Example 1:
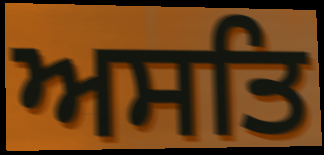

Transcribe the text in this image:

ਅਸਤਿ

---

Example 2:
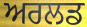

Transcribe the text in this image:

ਅਰਲਡ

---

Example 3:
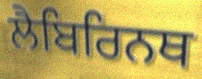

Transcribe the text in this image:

ਲੈਬਿਰਿਨਥ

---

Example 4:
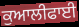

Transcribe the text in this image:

ਕੁਆਲੀਫਾਈ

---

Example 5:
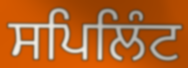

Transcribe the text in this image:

ਸਪਿਲਿੰਟ